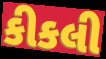
કીકલી